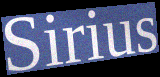
Sirius